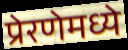
प्रेरणेमध्ये